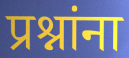
प्रश्नांना